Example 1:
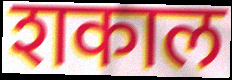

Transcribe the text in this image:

शकाल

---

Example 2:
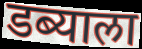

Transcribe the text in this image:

डब्याला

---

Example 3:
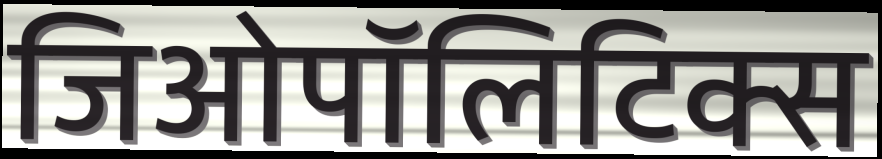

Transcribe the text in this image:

जिओपॉलिटिक्स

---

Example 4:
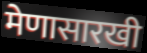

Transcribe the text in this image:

मेणासारखी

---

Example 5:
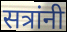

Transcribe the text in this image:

सत्रांनी